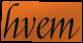
hvem